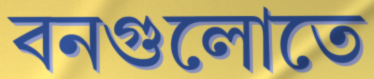
বনগুলোতে